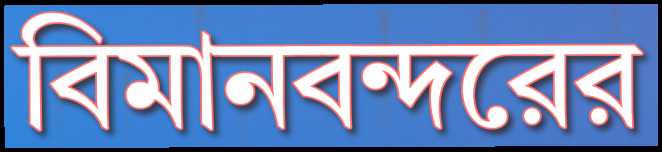
বিমানবন্দরের